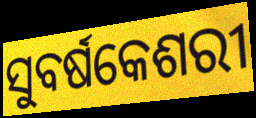
ସୁବର୍ଷକେଶରୀ